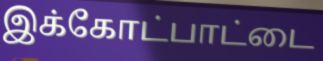
இக்கோட்பாட்டை